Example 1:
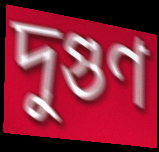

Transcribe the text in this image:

দুগুণ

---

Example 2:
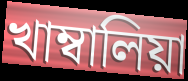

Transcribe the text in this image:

খাম্বালিয়া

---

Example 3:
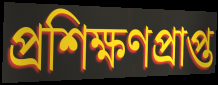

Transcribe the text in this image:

প্ৰশিক্ষণপ্ৰাপ্ত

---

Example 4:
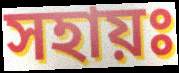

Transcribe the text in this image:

সহায়ঃ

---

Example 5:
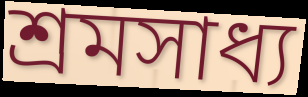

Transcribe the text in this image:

শ্ৰমসাধ্য